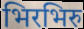
भिरभिरु